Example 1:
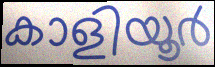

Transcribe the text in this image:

കാളിയൂർ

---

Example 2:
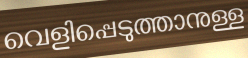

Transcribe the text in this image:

വെളിപ്പെടുത്താനുള്ള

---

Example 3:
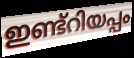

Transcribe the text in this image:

ഇണ്ട്റിയപ്പം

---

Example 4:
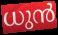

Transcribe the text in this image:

ധുൻ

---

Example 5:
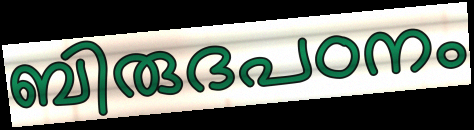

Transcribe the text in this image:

ബിരുദപഠനം